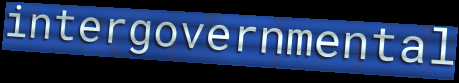
intergovernmental